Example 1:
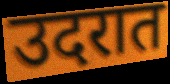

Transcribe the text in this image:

उदरात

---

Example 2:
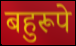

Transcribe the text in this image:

बहुरूपे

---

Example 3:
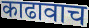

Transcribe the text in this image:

काढावाच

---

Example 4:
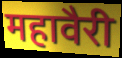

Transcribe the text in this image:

महावैरी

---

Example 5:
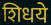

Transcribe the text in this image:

शिधये